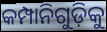
କମ୍ପାନିଗୁଡ଼ିକୁ